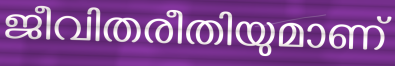
ജീവിതരീതിയുമാണ്